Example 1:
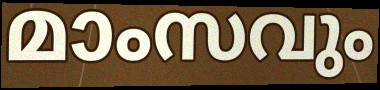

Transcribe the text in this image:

മാംസവും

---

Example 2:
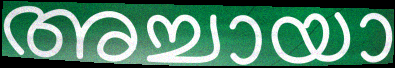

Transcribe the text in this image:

അച്ചായാ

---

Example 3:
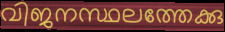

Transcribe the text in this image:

വിജനസ്ഥലത്തേക്കു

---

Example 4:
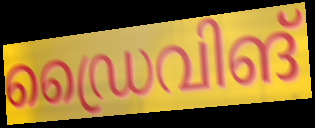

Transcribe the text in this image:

ഡ്രൈവിങ്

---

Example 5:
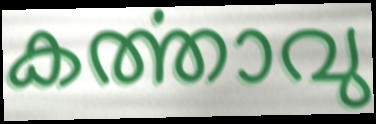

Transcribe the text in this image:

കൎത്താവു